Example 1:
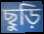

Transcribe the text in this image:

ছুড়ি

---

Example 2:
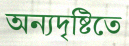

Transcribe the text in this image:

অন্যদৃষ্টিতে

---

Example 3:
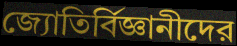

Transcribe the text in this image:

জ্যোতির্বিজ্ঞানীদের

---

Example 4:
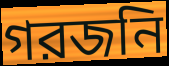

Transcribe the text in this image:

গরজনি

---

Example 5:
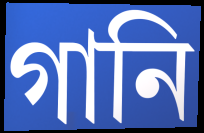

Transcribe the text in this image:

গানি